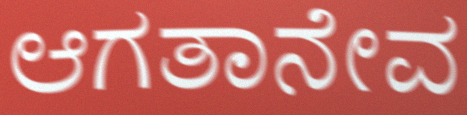
ಆಗತಾನೇವ